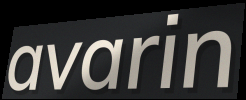
avarin